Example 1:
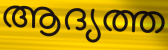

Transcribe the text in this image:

ആദ്യത്ത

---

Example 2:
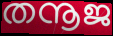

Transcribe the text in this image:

തനൂജ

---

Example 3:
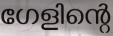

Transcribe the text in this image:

ഗേളിന്റെ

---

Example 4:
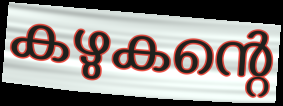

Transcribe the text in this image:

കഴുകന്റെ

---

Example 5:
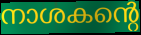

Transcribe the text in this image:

നാശകന്റെ